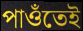
পাওঁতেই